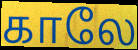
காலே